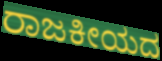
ರಾಜಕೀಯದ